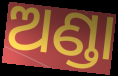
ଅଣ୍ଡା